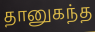
தானுகந்த